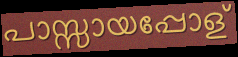
പാസ്സായപ്പോള്